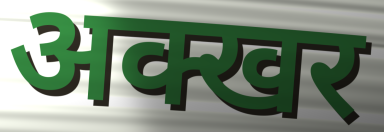
अक्खर